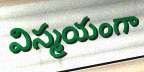
విస్మయంగా